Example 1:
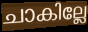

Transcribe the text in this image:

ചാകില്ലേ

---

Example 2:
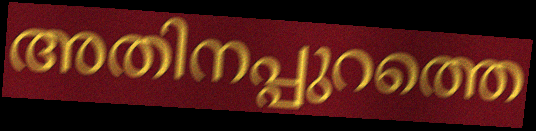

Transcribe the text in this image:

അതിനപ്പുറത്തെ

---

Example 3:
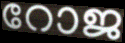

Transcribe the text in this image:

റോജ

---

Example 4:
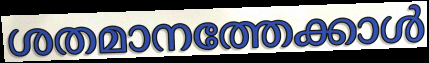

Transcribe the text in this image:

ശതമാനത്തേക്കാൾ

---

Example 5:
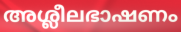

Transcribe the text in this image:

അശ്ലീലഭാഷണം